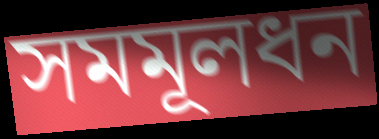
সমমূলধন